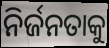
ନିର୍ଜନତାକୁ